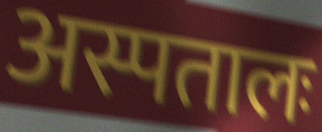
अस्पतालः